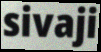
sivaji